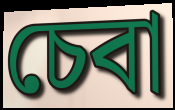
চেবা